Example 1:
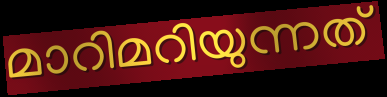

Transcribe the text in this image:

മാറിമറിയുന്നത്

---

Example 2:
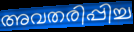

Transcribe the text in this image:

അവതരിപ്പിച്ച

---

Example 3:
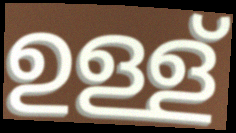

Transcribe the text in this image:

ഉള്ള്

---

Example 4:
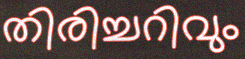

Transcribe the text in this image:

തിരിച്ചറിവും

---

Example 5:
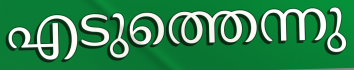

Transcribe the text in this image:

എടുത്തെന്നു